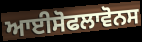
ਆਈਸੋਫਲਾਵੋਨਸ